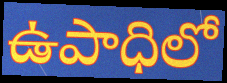
ఉపాధిలో